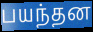
பயந்தன